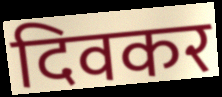
दिवकर